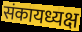
संकायध्यक्ष